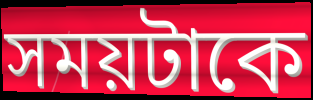
সময়টাকে